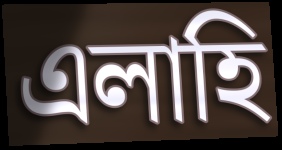
এলাহি